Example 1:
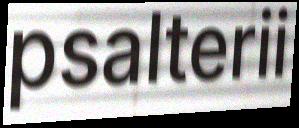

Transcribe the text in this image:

psalterii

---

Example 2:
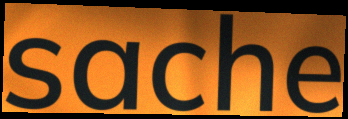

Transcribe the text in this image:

sache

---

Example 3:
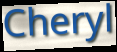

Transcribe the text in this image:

Cheryl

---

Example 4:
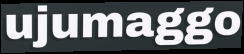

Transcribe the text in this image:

ujumaggo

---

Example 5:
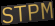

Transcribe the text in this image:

STPM